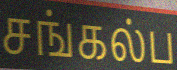
சங்கல்ப